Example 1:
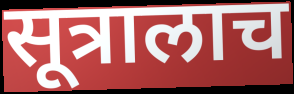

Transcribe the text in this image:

सूत्रालाच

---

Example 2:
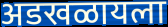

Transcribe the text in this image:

अडखळायला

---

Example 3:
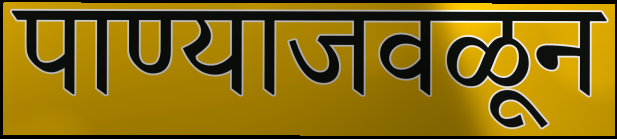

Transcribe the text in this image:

पाण्याजवळून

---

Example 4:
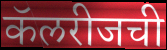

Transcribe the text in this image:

कॅलरीजची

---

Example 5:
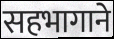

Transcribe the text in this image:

सहभागाने